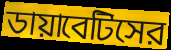
ডায়াবেটিসের